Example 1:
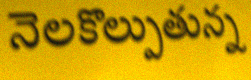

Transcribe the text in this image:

నెలకొల్పుతున్న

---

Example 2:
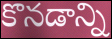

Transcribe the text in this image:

కొనడాన్ని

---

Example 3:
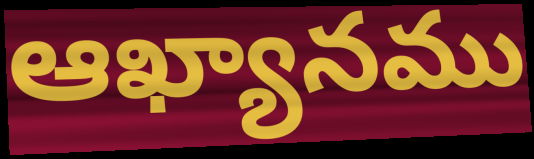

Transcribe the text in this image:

ఆఖ్యానము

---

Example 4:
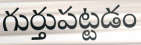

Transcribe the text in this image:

గుర్తుపట్టడం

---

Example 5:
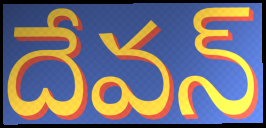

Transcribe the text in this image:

దేవన్